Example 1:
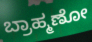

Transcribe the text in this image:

ಬ್ರಾಹ್ಮಣೋ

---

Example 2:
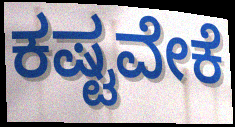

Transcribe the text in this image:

ಕಷ್ಟವೇಕೆ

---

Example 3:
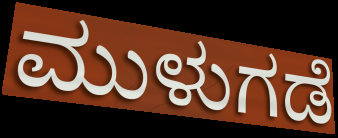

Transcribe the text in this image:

ಮುಳುಗಡೆ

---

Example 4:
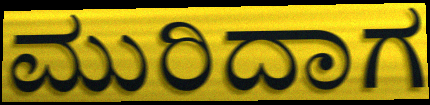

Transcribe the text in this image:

ಮುರಿದಾಗ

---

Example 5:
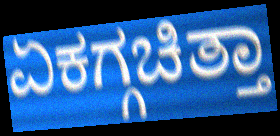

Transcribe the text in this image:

ಏಕಗ್ಗಚಿತ್ತಾ